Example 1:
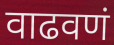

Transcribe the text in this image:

वाढवणं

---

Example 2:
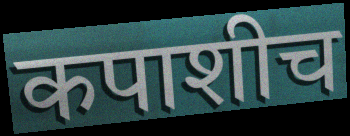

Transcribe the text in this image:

कपाशीच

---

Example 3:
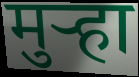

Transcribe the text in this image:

मुऱ्हा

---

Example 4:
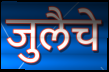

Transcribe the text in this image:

जुलैचे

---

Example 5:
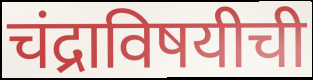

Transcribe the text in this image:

चंद्राविषयीची